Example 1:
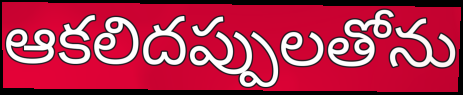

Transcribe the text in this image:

ఆకలిదప్పులతోను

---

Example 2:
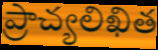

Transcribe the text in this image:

ప్రాచ్యలిఖిత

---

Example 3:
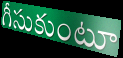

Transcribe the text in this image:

గీసుకుంటూ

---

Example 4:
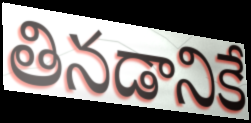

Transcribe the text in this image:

తినడానికే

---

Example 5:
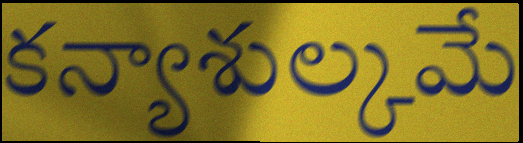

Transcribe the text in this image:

కన్యాశుల్కమే